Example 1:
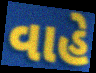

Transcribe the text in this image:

વાહે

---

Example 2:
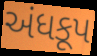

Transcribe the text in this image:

અંધકૂપ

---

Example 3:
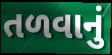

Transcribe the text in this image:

તળવાનું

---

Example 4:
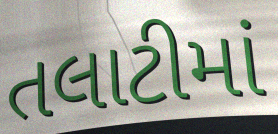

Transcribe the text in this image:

તલાટીમાં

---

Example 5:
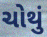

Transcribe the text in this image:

ચોથું